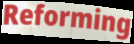
Reforming